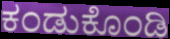
ಕಂಡುಕೊಂಡಿ